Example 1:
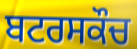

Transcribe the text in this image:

ਬਟਰਸਕੌਚ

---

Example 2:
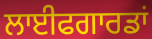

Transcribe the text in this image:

ਲਾਈਫਗਾਰਡਾਂ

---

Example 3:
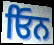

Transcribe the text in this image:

ਓਿਨ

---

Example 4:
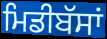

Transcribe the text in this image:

ਮਿਡੀਬੱਸਾਂ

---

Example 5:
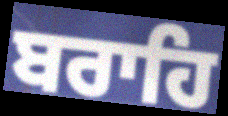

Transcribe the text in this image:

ਬਰਾਹਿ